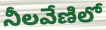
నీలవేణిలో